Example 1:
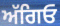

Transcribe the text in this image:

ਅੱਗਿਓ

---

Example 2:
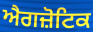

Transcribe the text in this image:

ਐਗਜ਼ੋਟਿਕ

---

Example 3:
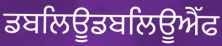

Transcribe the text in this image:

ਡਬਲਿਊਡਬਲਿਊਐੱਫ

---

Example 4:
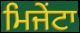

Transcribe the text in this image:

ਮਿਜੇਂਟਾ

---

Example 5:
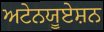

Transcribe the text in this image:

ਅਟੇਨਯੂਏਸ਼ਨ